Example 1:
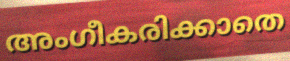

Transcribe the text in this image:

അംഗീകരിക്കാതെ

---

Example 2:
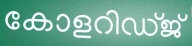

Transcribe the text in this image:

കോളറിഡ്ജ്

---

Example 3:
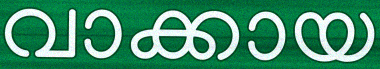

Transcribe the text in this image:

വാക്കായ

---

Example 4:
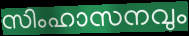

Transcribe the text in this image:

സിംഹാസനവും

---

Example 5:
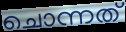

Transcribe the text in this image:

ചൊന്നത്